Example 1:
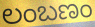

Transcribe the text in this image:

ಲಂಬಣಂ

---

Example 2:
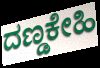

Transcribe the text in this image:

ದಣ್ಡಕೇಹಿ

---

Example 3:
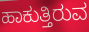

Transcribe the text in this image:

ಹಾಕುತ್ತಿರುವ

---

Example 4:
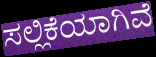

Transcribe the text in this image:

ಸಲ್ಲಿಕೆಯಾಗಿವೆ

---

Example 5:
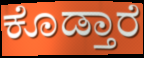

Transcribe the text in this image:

ಕೊಡ್ತಾರೆ